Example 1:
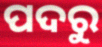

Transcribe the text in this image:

ପଦରୁ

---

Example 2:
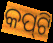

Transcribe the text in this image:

କପ୍‌ଟି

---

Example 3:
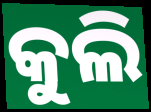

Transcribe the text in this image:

କୁଲି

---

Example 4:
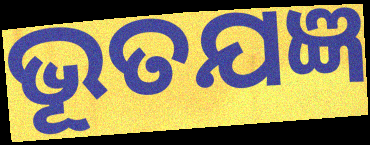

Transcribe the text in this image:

ଭୂତଯଜ୍ଞ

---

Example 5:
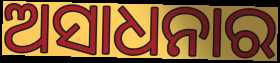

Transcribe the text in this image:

ଅସାଧନାର